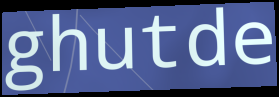
ghutde